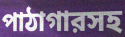
পাঠাগারসহ